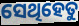
ସେଥିହେତୁ